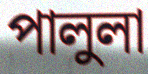
পালুলা